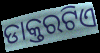
ଡାକ୍ତରଟିଏ